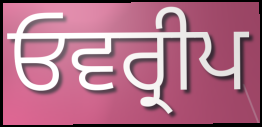
ਓਵਰ੍ਰੀਪ